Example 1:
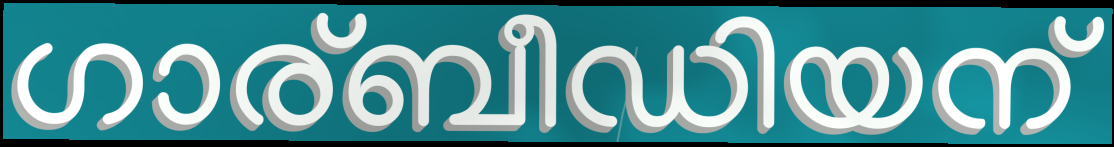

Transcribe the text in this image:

ഗാര്ബീഡിയന്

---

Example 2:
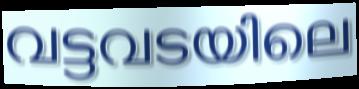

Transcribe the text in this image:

വട്ടവടയിലെ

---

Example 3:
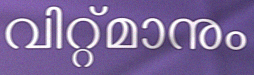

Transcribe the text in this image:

വിറ്റ്മാനും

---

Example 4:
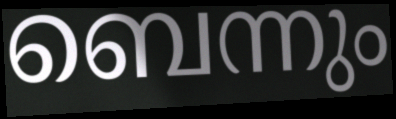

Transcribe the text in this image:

ബെന്നും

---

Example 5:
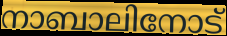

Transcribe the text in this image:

നാബാലിനോട്